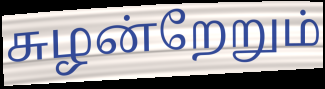
சுழன்றேறும்